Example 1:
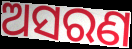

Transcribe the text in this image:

ଅସରଣ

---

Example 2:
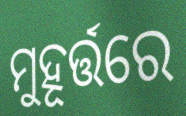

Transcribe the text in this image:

ମୁହୂର୍ତ୍ତରେ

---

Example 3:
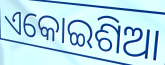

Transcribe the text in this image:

ଏକୋଇଶିଆ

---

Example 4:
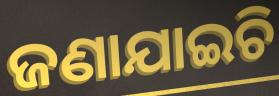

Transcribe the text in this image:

ଜଣାଯାଇଚି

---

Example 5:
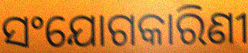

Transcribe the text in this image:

ସଂଯୋଗକାରିଣୀ